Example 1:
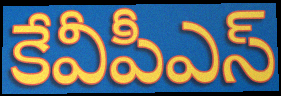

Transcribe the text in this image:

కేవీపీఎస్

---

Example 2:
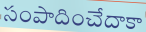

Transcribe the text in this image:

సంపాదించేదాకా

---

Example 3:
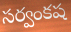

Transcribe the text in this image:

సర్వంకష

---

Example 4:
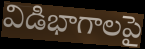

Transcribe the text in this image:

విడిభాగాలపై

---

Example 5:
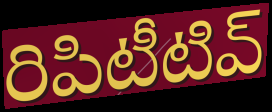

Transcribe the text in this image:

రిపిటీటివ్